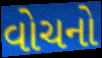
વોચનો